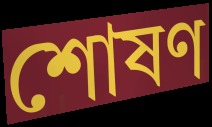
শোষণ